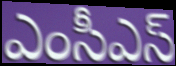
ఎంసీఎస్